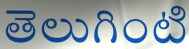
తెలుగింటి